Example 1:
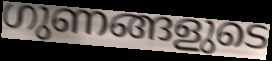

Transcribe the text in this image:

ഗുണങ്ങളുടെ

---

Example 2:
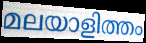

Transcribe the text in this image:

മലയാളിത്തം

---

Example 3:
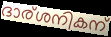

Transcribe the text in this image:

ദാര്ശനികന്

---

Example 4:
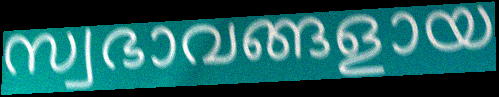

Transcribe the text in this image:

സ്വഭാവങ്ങളായ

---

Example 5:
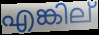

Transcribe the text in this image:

എങ്കില്